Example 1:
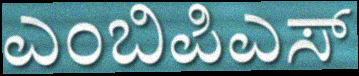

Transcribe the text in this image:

ಎಂಬಿಪಿಎಸ್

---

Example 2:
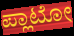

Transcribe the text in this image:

ಪ್ಲಾಟೋ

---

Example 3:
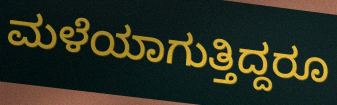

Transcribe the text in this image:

ಮಳೆಯಾಗುತ್ತಿದ್ದರೂ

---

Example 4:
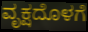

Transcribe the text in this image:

ವೃಕ್ಷದೊಳಗೆ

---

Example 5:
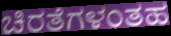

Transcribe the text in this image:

ಚಿರತೆಗಳಂತಹ